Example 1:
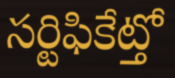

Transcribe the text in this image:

సర్టిఫికేట్తో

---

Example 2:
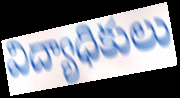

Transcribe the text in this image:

విద్యాధికులు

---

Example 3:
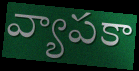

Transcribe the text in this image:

వ్యాపకా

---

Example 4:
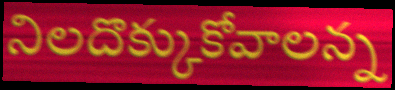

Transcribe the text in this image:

నిలదొక్కుకోవాలన్న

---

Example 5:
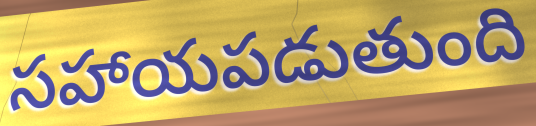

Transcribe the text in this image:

సహాయపడుతుంది